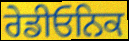
ਰੇਡੀਓਨਿਕ